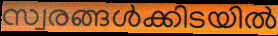
സ്വരങ്ങൾക്കിടയിൽ